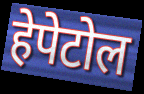
हेपेटोल